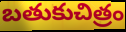
బతుకుచిత్రం